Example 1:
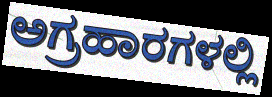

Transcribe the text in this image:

ಅಗ್ರಹಾರಗಳಲ್ಲಿ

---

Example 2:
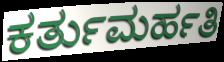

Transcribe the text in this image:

ಕರ್ತುಮರ್ಹತಿ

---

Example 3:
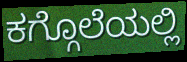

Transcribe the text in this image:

ಕಗ್ಗೊಲೆಯಲ್ಲಿ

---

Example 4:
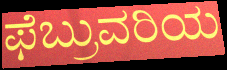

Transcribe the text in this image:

ಫೆಬ್ರುವರಿಯ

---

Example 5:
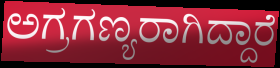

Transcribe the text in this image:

ಅಗ್ರಗಣ್ಯರಾಗಿದ್ದಾರೆ